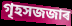
গৃহসজজাৰ